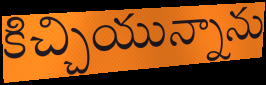
కిచ్చియున్నాను